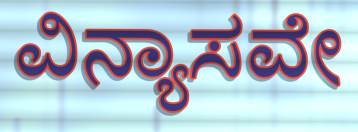
ವಿನ್ಯಾಸವೇ